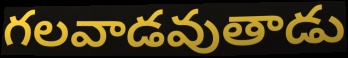
గలవాడవుతాడు